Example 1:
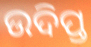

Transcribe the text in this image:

ଉଦିପ୍ତ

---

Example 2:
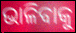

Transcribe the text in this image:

ଭାଳିବାକୁ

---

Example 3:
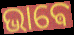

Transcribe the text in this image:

ଭାଵେ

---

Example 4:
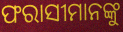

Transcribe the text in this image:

ଫରାସୀମାନଙ୍କୁ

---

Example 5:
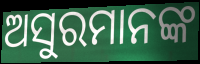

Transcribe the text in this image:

ଅସୁରମାନଙ୍କ